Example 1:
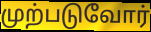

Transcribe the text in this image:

முற்படுவோர்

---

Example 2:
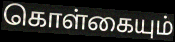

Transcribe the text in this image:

கொள்கையும்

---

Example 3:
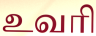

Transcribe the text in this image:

உவரி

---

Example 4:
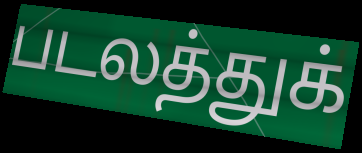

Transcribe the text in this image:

படலத்துக்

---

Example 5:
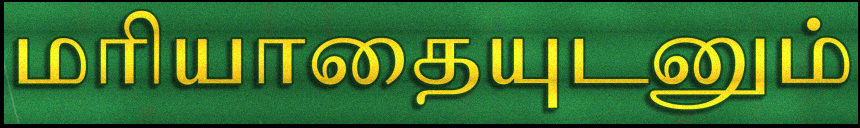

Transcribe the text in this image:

மரியாதையுடனும்